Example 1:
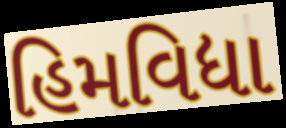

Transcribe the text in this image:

હિમવિદ્યા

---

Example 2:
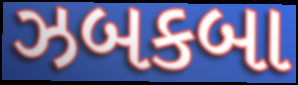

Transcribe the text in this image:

ઝબકબા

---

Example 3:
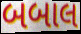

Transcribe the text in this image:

બબાલ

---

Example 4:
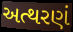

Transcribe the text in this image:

અત્થરણં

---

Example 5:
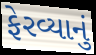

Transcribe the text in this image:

ફેરવ્યાનું